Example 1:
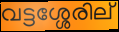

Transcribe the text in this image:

വട്ടശ്ശേരില്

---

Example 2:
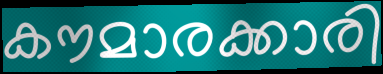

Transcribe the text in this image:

കൗമാരക്കാരി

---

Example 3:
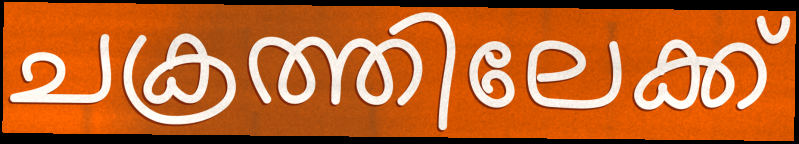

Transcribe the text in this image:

ചക്രത്തിലേക്ക്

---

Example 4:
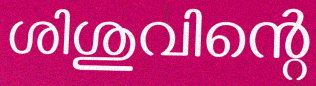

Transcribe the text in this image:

ശിശുവിന്റെ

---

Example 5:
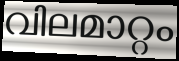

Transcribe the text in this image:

വിലമാറ്റം